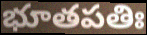
భూతపతిః